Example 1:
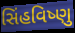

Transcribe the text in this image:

સિંહવિષ્ણુ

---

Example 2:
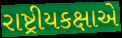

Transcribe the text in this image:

રાષ્ટ્રીયકક્ષાએ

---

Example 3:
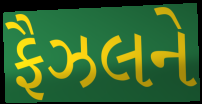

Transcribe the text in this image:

ફૈઝલને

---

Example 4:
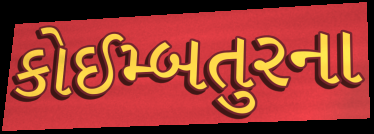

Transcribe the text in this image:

કોઈમ્બતુરના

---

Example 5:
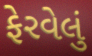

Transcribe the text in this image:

ફેરવેલું